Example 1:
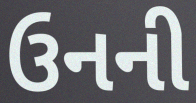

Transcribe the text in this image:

ઉનની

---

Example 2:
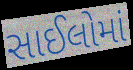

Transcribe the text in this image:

સાઈલોમાં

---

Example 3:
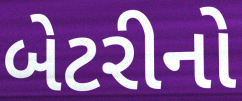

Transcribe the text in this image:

બેટરીનો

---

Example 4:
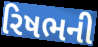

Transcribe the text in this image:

રિષભની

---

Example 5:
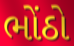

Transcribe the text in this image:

ભોંઠો